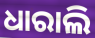
ଧାରାଲି